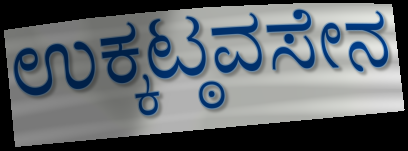
ಉಕ್ಕಟ್ಠವಸೇನ